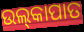
ଉଲ୍‍କାପାତ